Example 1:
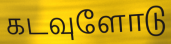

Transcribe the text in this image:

கடவுளோடு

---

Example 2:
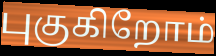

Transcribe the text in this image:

புகுகிறோம்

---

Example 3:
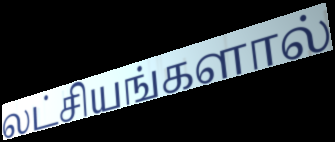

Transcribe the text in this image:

லட்சியங்களால்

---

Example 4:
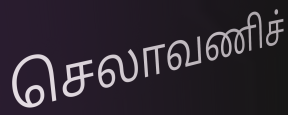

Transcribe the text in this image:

செலாவணிச்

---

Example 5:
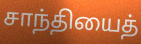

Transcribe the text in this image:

சாந்தியைத்